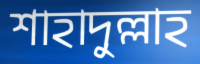
শাহাদুল্লাহ